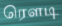
ரௌடி